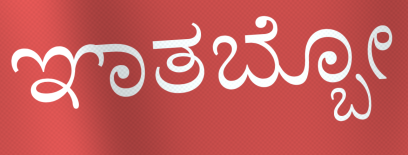
ಞಾತಬ್ಬೋ